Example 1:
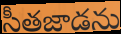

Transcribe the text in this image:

సీతజాడను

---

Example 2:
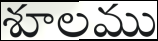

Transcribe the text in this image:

శూలము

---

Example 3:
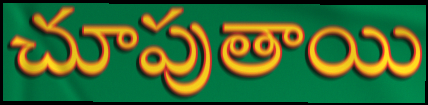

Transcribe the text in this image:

చూపుతాయి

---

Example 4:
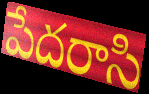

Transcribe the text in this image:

పేదరాసి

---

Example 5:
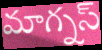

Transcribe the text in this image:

మాగ్నస్